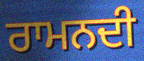
ਰਾਮਨਦੀ